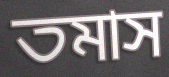
তমাস